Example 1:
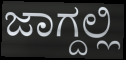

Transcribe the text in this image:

ಜಾಗ್ದಲ್ಲಿ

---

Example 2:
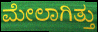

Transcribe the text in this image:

ಮೇಲಾಗಿತ್ತು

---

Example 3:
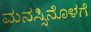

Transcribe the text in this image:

ಮನಸ್ಸಿನೊಳಗೆ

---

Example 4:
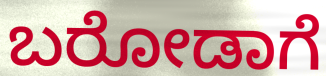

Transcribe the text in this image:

ಬರೋಡಾಗೆ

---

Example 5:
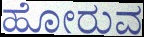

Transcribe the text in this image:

ಹೋರುವ